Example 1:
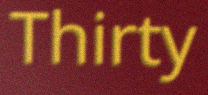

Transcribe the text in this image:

Thirty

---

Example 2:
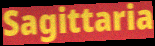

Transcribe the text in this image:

Sagittaria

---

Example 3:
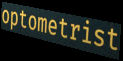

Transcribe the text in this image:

optometrist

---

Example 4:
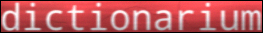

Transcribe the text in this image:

dictionarium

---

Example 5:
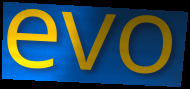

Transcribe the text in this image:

evo